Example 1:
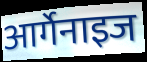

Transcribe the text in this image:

आर्गेनाइज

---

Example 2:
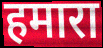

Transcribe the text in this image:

हमारा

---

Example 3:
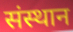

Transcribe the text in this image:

संस्थान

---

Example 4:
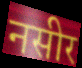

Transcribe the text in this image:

नसीर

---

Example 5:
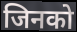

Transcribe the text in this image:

जिनको